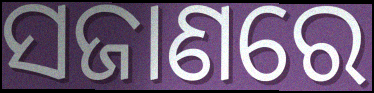
ସଜାଣରେ